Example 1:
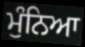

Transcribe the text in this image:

ਮੁੰਨਿਆ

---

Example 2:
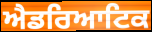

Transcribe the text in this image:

ਐਡਰਿਆਟਿਕ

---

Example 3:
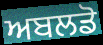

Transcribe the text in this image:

ਅਬਲਡੋ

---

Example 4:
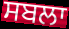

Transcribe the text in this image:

ਸਬਲਾ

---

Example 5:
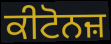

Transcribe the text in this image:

ਕੀਟੋਨਜ਼